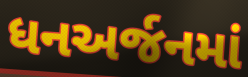
ધનઅર્જનમાં